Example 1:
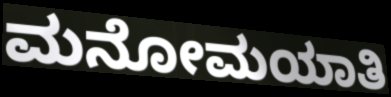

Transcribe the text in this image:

ಮನೋಮಯಾತಿ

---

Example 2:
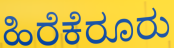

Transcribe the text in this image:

ಹಿರೆಕೆರೂರು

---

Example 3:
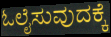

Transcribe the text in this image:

ಓಲೈಸುವುದಕ್ಕೆ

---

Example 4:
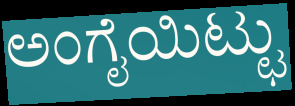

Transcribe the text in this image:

ಅಂಗೈಯಿಟ್ಟು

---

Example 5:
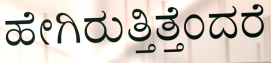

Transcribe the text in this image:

ಹೇಗಿರುತ್ತಿತ್ತೆಂದರೆ